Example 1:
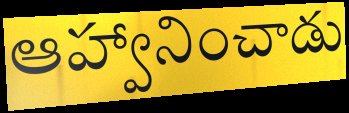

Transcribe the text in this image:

ఆహ్వానించాడు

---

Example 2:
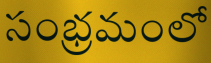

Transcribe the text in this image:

సంభ్రమంలో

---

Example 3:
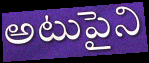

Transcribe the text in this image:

అటుపైని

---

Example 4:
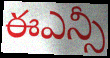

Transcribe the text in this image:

ఈఎన్సీ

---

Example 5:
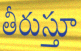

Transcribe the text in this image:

తీరుస్తూ